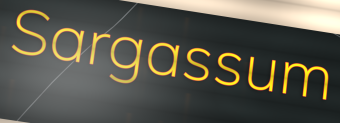
Sargassum